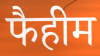
फैहीम